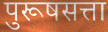
पुरूषसत्ता